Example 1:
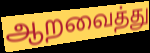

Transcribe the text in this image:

ஆறவைத்து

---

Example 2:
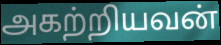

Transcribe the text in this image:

அகற்றியவன்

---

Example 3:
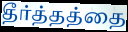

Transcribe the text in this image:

தீர்த்தத்தை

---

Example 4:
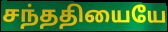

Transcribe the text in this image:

சந்ததியையே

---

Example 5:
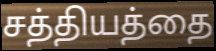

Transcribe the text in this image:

சத்தியத்தை